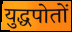
युद्धपोतों